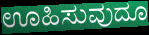
ಊಹಿಸುವುದೂ